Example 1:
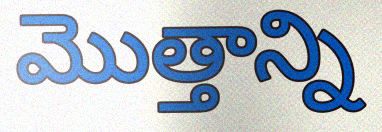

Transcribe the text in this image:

మొత్తాన్ని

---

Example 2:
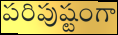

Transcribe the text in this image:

పరిపుష్టంగా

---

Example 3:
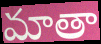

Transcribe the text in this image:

మాతా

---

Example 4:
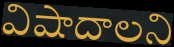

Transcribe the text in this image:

విషాదాలని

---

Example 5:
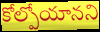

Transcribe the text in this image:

కోల్పోయానని